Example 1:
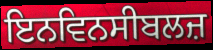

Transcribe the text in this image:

ਇਨਵਿਨਸੀਬਲਜ਼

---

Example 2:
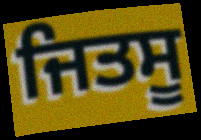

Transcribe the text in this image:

ਜਿਤਸੂ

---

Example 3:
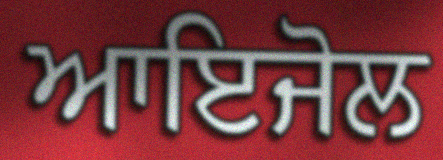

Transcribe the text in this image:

ਆਇਜੋਲ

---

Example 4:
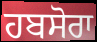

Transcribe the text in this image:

ਹਬਸੋਰਾ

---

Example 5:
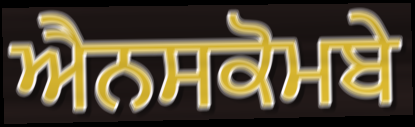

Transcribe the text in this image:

ਐਨਸਕੋਮਬੇ